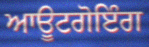
ਆਊਟਗੋਇੰਗ